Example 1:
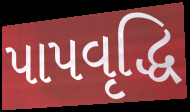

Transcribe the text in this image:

પાપવૃદ્ધિ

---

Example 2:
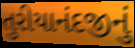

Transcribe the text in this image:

તુરીયાનંદજીનું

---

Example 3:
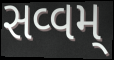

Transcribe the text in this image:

સવ્વમ્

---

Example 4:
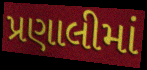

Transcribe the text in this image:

પ્રણાલીમાં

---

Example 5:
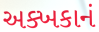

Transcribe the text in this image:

અક્ખકાનં